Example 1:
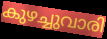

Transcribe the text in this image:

കുഴച്ചുവാരി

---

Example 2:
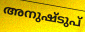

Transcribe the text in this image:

അനുഷ്ടുപ്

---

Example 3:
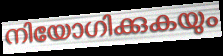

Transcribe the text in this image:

നിയോഗിക്കുകയും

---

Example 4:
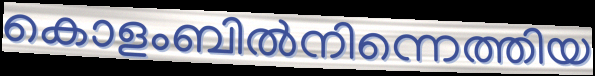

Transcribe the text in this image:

കൊളംബിൽനിന്നെത്തിയ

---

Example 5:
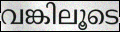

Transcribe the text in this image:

വങ്കിലൂടെ